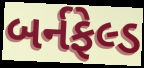
બર્નફેલ્ડ